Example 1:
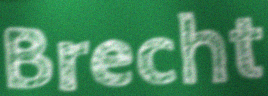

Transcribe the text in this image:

Brecht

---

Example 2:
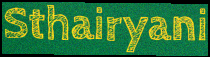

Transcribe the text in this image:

Sthairyani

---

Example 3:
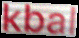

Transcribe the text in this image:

kbal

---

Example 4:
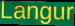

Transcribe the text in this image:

Langur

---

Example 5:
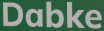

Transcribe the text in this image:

Dabke